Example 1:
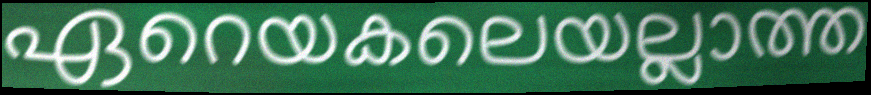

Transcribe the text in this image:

ഏറെയകലെയല്ലാത്ത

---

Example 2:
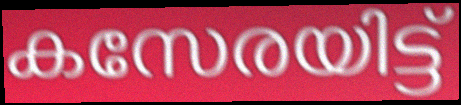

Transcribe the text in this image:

കസേരയിട്ട്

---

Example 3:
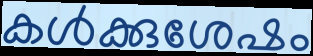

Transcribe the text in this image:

കൾക്കുശേഷം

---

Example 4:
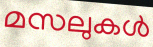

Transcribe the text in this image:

മസലുകൾ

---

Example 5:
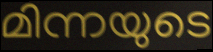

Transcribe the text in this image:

മിന്നയുടെ